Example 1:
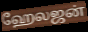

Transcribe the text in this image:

ஹேலஜன்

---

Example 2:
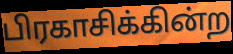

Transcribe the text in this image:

பிரகாசிக்கின்ற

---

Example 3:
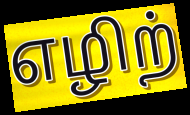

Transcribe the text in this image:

எழிற்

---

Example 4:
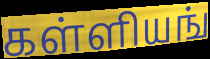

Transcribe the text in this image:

கள்ளியங்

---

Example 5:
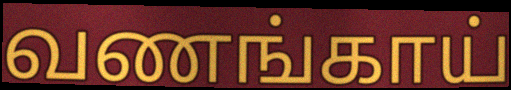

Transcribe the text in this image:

வணங்காய்